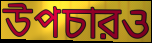
উপচারও